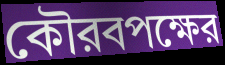
কৌরবপক্ষের